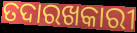
ତଦାରଖକାରୀ